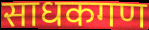
साधकगण